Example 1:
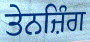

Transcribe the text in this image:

ਤੇਨਜ਼ਿੰਗ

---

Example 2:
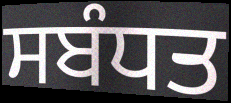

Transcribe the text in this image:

ਸਬੰਧਤ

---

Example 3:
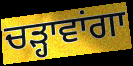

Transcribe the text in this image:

ਚੜ੍ਹਾਵਾਂਗਾ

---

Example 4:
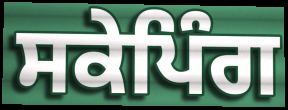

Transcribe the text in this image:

ਸਕੇਪਿੰਗ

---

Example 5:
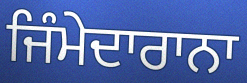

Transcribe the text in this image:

ਜਿੰਮੇਦਾਰਾਨਾ